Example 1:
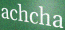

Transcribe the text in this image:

achcha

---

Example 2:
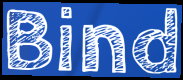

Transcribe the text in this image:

Bind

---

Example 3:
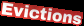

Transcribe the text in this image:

Evictions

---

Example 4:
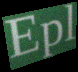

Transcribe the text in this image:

Epl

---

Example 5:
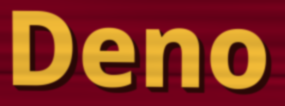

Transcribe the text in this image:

Deno